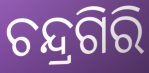
ଚନ୍ଦ୍ରଗିରି